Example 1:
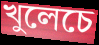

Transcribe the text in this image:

খুলেচে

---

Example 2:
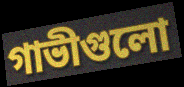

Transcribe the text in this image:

গাভীগুলো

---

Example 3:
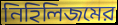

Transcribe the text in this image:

নিহিলিজমের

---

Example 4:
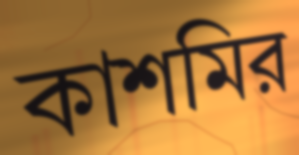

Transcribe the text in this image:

কাশমির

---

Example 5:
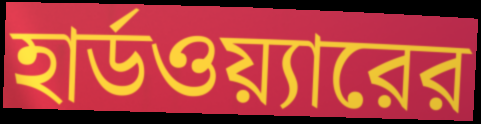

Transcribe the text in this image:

হার্ডওয়্যারের